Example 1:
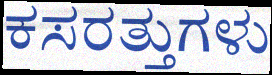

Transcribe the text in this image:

ಕಸರತ್ತುಗಳು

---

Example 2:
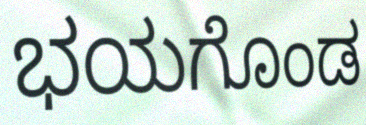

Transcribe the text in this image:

ಭಯಗೊಂಡ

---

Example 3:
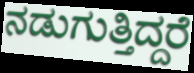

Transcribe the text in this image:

ನಡುಗುತ್ತಿದ್ದರೆ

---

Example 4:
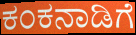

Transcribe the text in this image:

ಕಂಕನಾಡಿಗೆ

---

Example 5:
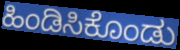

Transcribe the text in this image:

ಹಿಂಡಿಸಿಕೊಂಡು